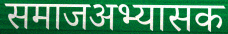
समाजअभ्यासक